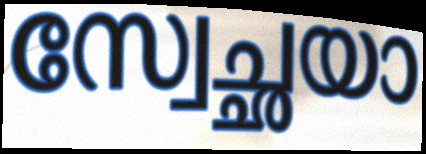
സ്വേച്ഛയാ